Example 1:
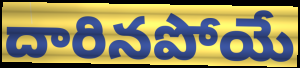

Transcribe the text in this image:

దారినపోయే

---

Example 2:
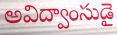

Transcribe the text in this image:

అవిద్వాంసుడై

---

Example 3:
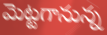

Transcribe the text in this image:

మెట్టగానున్న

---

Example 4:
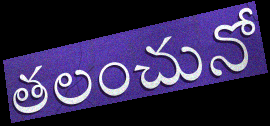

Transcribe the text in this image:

తలంచునో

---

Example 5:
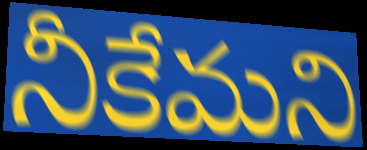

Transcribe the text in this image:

నీకేమని